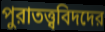
পুরাতত্ত্ববিদদের